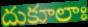
దుకూలాః